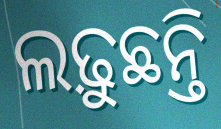
ଲଢ଼ୁଛନ୍ତି